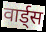
वार्ड्स